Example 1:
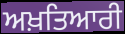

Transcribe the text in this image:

ਅਖ਼ਤਿਆਰੀ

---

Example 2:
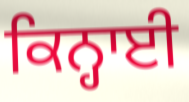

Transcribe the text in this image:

ਕਿਨ੍ਹਾਈ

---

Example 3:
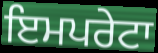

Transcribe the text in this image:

ਇਮਪਰੇਟਾ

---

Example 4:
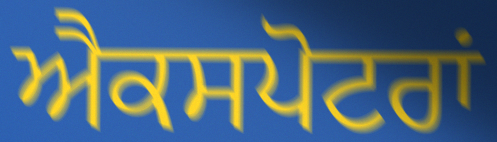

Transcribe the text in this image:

ਐਕਸਪੋਟਰਾਂ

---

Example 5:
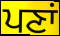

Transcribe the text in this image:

ਪਣਾਂ